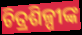
ଚିତ୍ରଶିଳ୍ପୀଙ୍କ